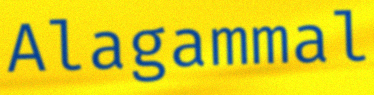
Alagammal